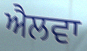
ਐਲਵਾ